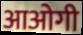
आओगी